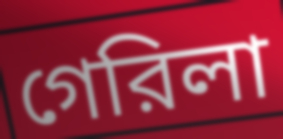
গেরিলা